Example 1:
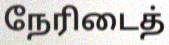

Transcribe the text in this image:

நேரிடைத்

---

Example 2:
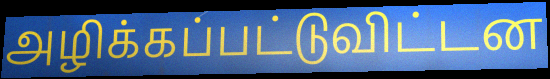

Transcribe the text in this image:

அழிக்கப்பட்டுவிட்டன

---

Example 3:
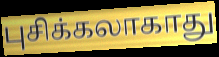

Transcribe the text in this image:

புசிக்கலாகாது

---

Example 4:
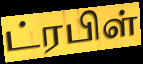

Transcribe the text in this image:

ட்ரபிள்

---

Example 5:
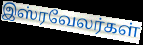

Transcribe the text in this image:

இஸ்ரவேலர்கள்